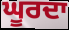
ਘੂਰਦਾ